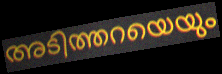
അടിത്തറയെയും